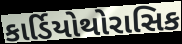
કાર્ડિયોથોરાસિક